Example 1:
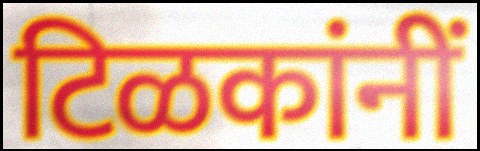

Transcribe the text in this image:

टिळकांनीं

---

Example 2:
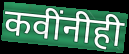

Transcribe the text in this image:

कवींनीही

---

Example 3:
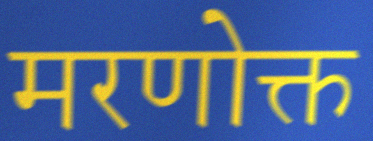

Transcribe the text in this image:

मरणोक्त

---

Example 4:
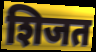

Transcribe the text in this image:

शिजत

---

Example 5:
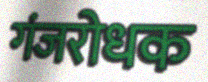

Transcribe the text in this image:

गंजरोधक